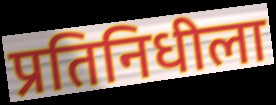
प्रतिनिधीला